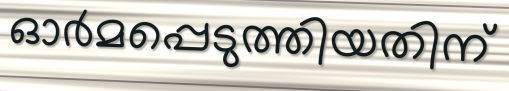
ഓർമപ്പെടുത്തിയതിന്